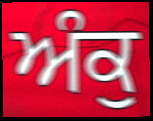
ਅੰਕੁ